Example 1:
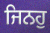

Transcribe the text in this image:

ਜਿਨਹੁ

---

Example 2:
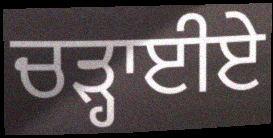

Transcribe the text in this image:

ਚੜ੍ਹਾਈਏ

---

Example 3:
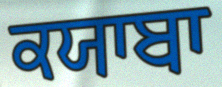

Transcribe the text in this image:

ਕਯਾਬਾ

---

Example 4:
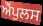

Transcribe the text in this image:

ਐਂਪੁਲਸ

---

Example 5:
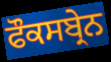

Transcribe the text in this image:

ਫੌਕਸਬ੍ਰੇਨ